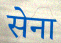
सेना